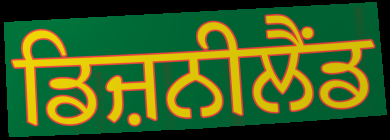
ਡਿਜ਼ਨੀਲੈਂਡ